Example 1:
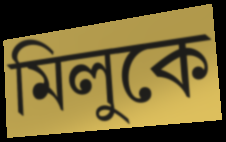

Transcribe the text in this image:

মিলুকে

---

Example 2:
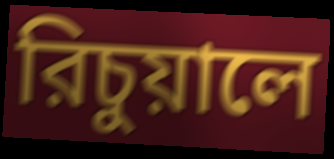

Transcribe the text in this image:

রিচুয়ালে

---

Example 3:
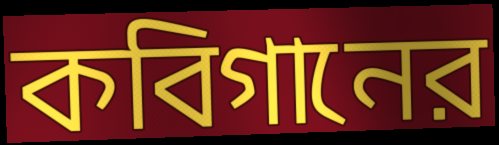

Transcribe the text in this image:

কবিগানের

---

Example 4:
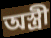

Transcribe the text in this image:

অস্ত্রী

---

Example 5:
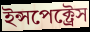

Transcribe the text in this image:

ইন্সপেক্ট্রেস